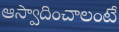
ఆస్వాదించాలంటే